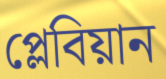
প্লেবিয়ান